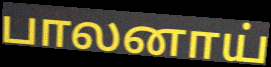
பாலனாய்